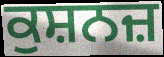
ਕੁਸ਼ਨਜ਼